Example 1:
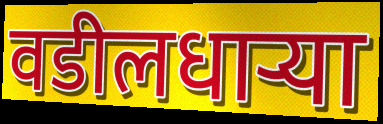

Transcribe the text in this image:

वडीलधाऱ्या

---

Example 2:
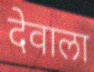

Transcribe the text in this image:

देवाला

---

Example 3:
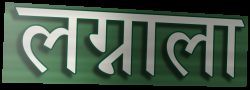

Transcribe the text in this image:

लग्नाला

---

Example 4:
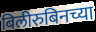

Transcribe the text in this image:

बिलीरुबिनच्या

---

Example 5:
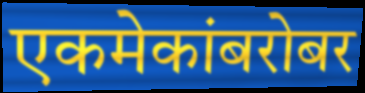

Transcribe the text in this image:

एकमेकांबरोबर